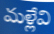
మళ్లేవి